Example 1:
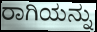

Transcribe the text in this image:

ರಾಗಿಯನ್ನು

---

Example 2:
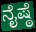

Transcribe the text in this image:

ನೈಷ್ಠೆ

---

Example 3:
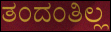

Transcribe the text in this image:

ತಂದಂತಿಲ್ಲ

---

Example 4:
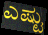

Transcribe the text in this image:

ಎಷ್ಟು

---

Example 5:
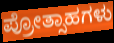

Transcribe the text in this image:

ಪ್ರೋತ್ಸಾಹಗಳು